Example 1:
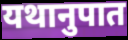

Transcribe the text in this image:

यथानुपात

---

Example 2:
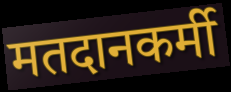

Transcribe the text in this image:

मतदानकर्मी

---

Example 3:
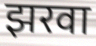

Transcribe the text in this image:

झरवा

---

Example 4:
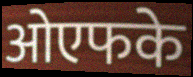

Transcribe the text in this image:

ओएफके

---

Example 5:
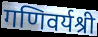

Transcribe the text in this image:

गणिवर्यश्री